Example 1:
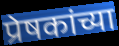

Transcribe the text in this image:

प्रेषकांच्या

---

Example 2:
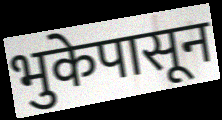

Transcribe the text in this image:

भुकेपासून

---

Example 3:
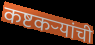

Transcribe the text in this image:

कष्टकऱ्यांची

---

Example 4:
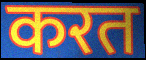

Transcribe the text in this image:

करत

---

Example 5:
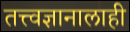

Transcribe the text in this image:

तत्त्वज्ञानालाही